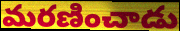
మరణించాడు